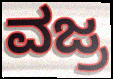
ವಜ್ರ